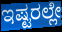
ಇಷ್ಟರಲ್ಲೇ